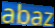
abaz